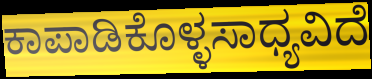
ಕಾಪಾಡಿಕೊಳ್ಳಸಾಧ್ಯವಿದೆ